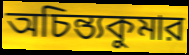
অচিন্ত্যকুমার